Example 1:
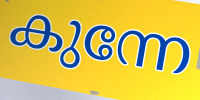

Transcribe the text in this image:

കുന്നേ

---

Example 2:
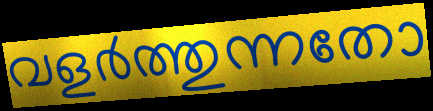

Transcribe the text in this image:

വളർത്തുന്നതോ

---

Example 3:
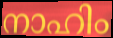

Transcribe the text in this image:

നാഹിം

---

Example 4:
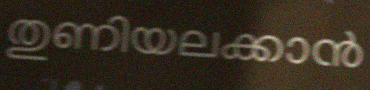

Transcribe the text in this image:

തുണിയലക്കാൻ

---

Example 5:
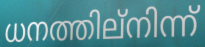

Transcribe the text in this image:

ധനത്തില്നിന്ന്